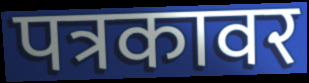
पत्रकावर